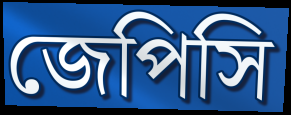
জেপিসি